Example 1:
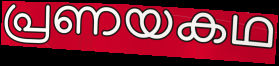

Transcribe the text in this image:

പ്രണയകഥ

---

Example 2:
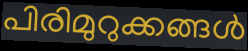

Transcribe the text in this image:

പിരിമുറുക്കങ്ങൾ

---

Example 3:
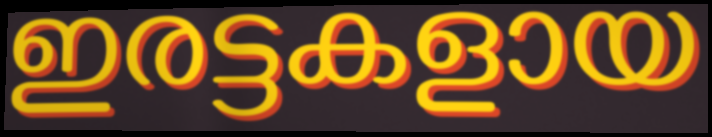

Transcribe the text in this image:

ഇരട്ടകളായ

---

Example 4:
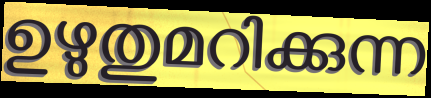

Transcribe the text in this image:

ഉഴുതുമറിക്കുന്ന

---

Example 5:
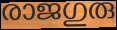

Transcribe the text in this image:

രാജഗുരു